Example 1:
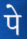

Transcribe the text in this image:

पे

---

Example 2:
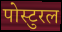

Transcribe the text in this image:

पोस्टुरल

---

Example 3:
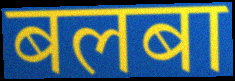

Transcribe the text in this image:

बलबा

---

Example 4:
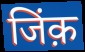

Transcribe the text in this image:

जिंक़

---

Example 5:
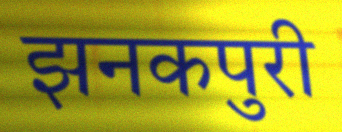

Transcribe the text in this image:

झनकपुरी